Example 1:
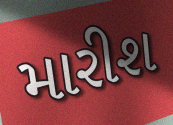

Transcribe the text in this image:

મારીશ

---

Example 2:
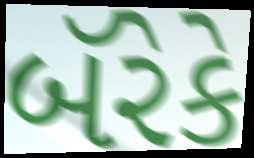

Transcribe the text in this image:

બૅરેકે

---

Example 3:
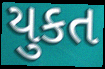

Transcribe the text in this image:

યુકત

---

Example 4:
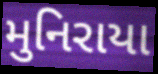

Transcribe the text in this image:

મુનિરાયા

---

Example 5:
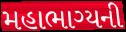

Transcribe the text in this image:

મહાભાગ્યની